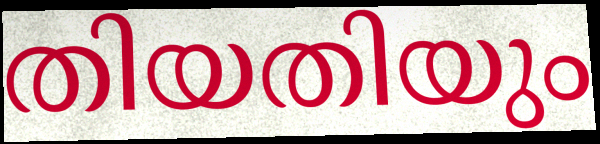
തിയതിയും